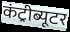
कंट्रीब्यूटर